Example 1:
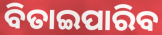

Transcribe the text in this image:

ବିତାଇପାରିବ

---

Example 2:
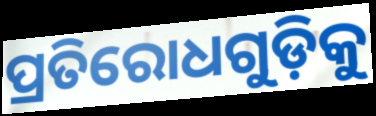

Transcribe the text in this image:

ପ୍ରତିରୋଧଗୁଡ଼ିକୁ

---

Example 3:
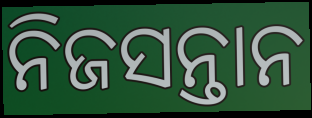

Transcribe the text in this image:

ନିଜସନ୍ତାନ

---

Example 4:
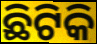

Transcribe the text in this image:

ଛିଟିକି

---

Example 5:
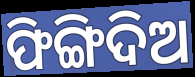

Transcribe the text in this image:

ଫିଙ୍ଗିଦିଅ